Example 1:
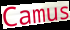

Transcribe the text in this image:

Camus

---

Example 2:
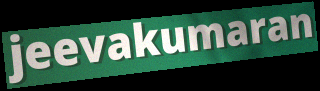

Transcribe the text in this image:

jeevakumaran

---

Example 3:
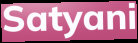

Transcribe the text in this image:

Satyani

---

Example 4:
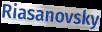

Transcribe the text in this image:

Riasanovsky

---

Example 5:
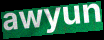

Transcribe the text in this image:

awyun